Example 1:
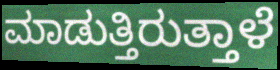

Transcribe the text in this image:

ಮಾಡುತ್ತಿರುತ್ತಾಳೆ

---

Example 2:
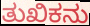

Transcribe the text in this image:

ತುಖಿಕನು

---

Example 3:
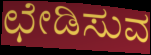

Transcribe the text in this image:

ಛೇಡಿಸುವ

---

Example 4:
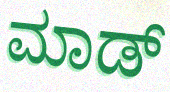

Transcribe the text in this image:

ಮಾಡ್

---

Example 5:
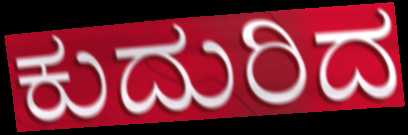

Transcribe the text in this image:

ಕುದುರಿದ